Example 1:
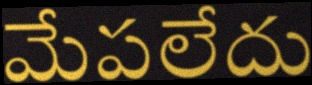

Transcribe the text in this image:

మేపలేదు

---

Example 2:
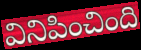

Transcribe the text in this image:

వినిపించింది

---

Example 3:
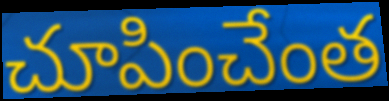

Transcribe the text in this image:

చూపించేంత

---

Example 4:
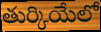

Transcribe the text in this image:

తుర్కియేలో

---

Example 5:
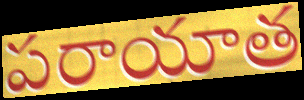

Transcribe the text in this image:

పరాయాత